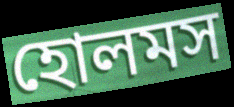
হোলমস